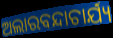
ଅଲାରବନ୍ଦାଚାର୍ଯ୍ୟ